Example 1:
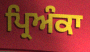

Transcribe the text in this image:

ਪ੍ਰਿਅੰਕਾ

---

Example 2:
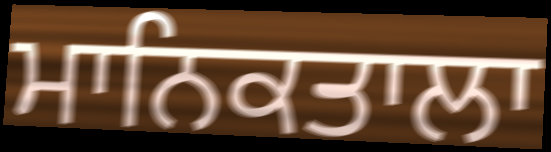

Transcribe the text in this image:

ਮਾਨਿਕਤਾਲਾ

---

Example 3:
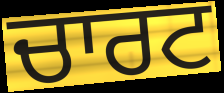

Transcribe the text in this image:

ਚਾਰਟ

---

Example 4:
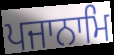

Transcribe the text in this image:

ਪਜਾਨਾਮਿ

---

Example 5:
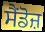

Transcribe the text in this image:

ਸੈਂਡੋਜ਼